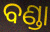
ବଣ୍ଡା